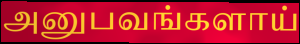
அனுபவங்களாய்